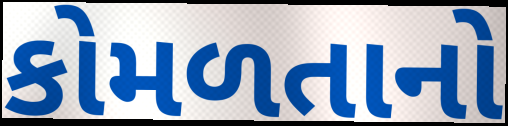
કોમળતાનો